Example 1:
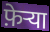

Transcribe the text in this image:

फ़ेर्‍या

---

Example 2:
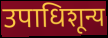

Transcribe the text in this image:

उपाधिशून्य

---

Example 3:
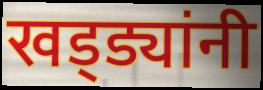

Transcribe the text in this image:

खड्ड्यांनी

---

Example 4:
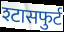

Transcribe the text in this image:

श्टासफुर्ट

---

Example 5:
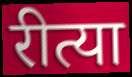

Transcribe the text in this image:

रीत्या